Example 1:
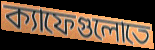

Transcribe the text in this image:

ক্যাফেগুলোতে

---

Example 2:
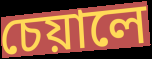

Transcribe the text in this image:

চেয়ালে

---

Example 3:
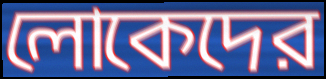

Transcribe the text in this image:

লোকেদের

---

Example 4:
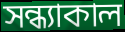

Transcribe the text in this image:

সন্ধ্যাকাল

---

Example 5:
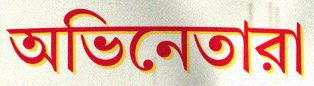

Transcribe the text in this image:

অভিনেতারা